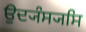
ਉਦ੍ਯੰਸ੍ਯਸਿ